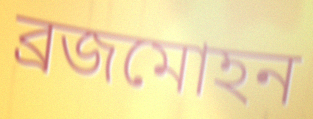
ব্রজমোহন